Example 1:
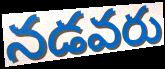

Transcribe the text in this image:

నడవరు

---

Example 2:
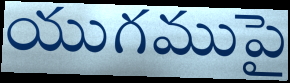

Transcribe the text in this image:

యుగముపై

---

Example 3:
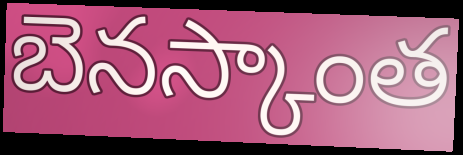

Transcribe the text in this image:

బెనస్కాంత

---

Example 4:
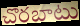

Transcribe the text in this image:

చొరబాటు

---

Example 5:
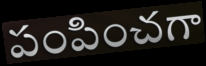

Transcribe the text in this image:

పంపించగా